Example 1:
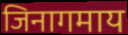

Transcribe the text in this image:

जिनागमाय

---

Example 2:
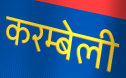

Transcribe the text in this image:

करम्बेली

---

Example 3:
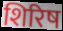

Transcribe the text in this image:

शिरिष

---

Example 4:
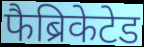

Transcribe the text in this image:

फैब्रिकेटेड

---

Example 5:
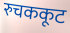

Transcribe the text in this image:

रुचककूट